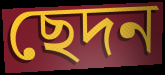
ছেদন